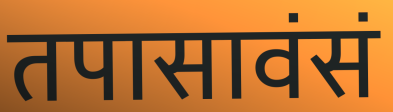
तपासावंसं